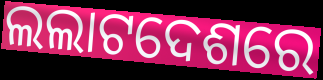
ଲଲାଟଦେଶରେ